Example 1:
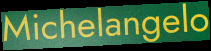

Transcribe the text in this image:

Michelangelo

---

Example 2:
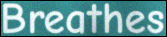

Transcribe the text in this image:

Breathes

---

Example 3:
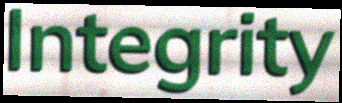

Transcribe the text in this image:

Integrity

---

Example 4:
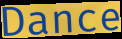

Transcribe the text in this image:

Dance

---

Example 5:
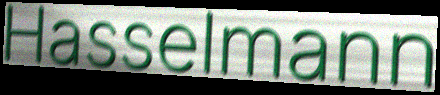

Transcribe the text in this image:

Hasselmann